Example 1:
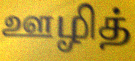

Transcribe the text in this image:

ஊழித்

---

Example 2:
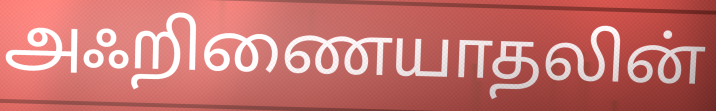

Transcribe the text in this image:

அஃறிணையாதலின்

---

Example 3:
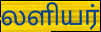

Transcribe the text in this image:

லளியர்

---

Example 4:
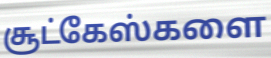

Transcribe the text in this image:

சூட்கேஸ்களை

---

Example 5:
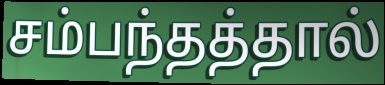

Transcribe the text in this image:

சம்பந்தத்தால்